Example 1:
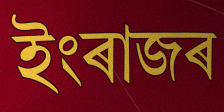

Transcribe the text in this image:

ইংৰাজৰ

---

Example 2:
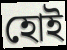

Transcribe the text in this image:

হোই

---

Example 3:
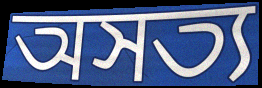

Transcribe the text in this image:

অসত্য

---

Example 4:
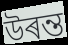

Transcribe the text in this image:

উৰন্ত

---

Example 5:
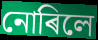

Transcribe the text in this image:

নোৰিলে